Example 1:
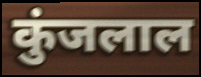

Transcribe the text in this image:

कुंजलाल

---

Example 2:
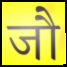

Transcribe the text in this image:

जौ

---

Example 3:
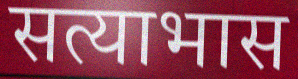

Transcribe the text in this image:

सत्याभास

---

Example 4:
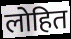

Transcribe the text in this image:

लोहित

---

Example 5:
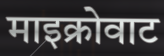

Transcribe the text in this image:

माइक्रोवाट